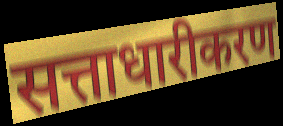
सत्ताधारीकरण